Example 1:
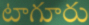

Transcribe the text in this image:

టాగూరు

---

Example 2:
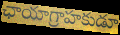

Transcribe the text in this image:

ఛాయాగ్రాహకుడూ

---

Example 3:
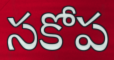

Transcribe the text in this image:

సకోప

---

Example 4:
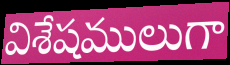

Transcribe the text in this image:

విశేషములుగా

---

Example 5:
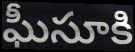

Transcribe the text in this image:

ఘీసూకి